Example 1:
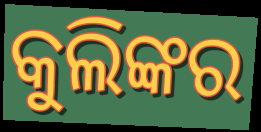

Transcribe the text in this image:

କୁଲିଙ୍କର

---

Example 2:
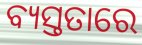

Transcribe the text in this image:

ବ୍ୟସ୍ତତାରେ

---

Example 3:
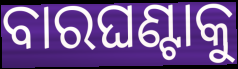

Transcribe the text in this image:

ବାରଘଣ୍ଟାକୁ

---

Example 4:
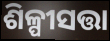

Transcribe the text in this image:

ଶିଳ୍ପୀସତ୍ତା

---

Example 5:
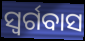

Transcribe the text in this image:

ସ୍ଵର୍ଗବାସ